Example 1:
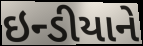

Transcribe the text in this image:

ઇન્ડીયાને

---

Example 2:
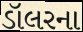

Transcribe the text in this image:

ડૉલરના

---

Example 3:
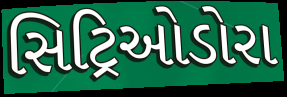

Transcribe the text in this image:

સિટ્રિઓડોરા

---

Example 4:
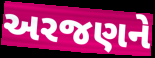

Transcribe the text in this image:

અરજણને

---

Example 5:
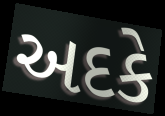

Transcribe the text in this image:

અદકે